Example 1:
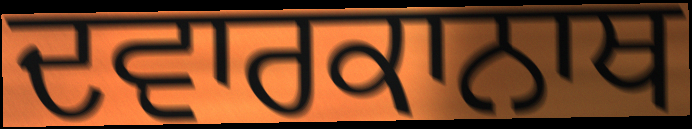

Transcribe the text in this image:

ਦਵਾਰਕਾਨਾਥ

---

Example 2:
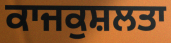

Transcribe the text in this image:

ਕਾਜਕੁਸ਼ਲਤਾ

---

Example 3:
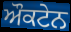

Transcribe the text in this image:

ਔਕਟੇਨ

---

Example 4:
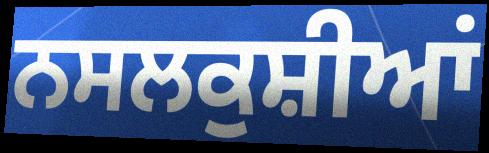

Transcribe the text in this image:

ਨਸਲਕੁਸ਼ੀਆਂ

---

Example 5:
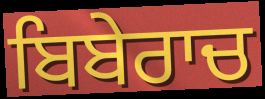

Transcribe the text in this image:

ਬਿਬੇਰਾਚ